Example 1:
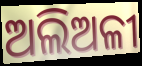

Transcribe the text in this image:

ଅଲିଅଳୀ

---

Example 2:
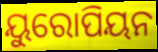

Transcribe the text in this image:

ୟୁରୋପିୟନ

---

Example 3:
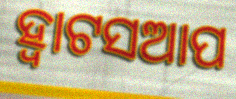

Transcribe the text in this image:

ହ୍ୱାଟସଆପ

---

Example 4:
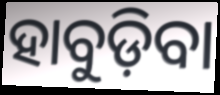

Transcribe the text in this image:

ହାବୁଡ଼ିବା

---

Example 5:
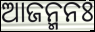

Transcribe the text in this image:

ଆଜନ୍ମନଃ